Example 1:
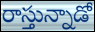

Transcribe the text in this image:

రాస్తున్నాడో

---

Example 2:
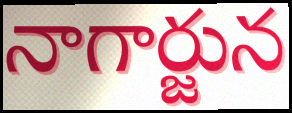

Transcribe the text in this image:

నాగార్జున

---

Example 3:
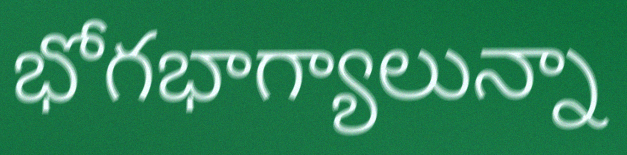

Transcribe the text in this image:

భోగభాగ్యాలున్నా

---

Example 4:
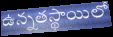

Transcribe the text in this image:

ఉన్నతస్థాయిలో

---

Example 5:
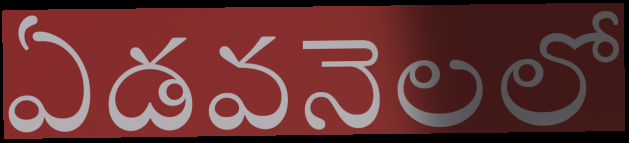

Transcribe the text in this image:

ఏడవనెలలో